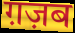
ग़ज़ब